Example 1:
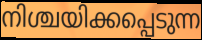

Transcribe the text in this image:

നിശ്ചയിക്കപ്പെടുന്ന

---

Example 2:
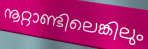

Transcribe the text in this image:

നൂറ്റാണ്ടിലെങ്കിലും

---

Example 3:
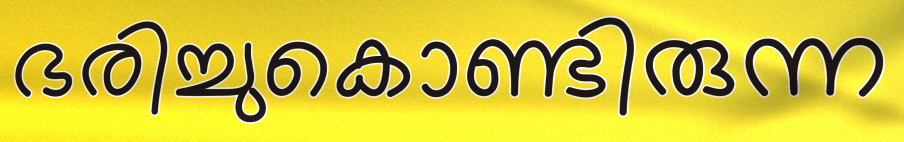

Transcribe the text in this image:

ഭരിച്ചുകൊണ്ടിരുന്ന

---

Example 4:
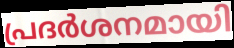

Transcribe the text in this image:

പ്രദർശനമായി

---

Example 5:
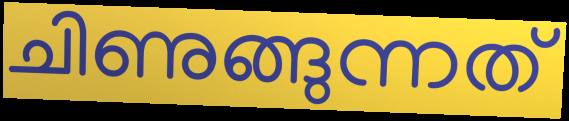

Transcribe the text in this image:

ചിണുങ്ങുന്നത്